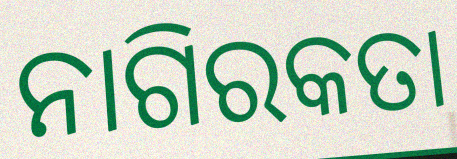
ନାଗିରକତା